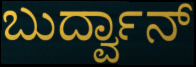
ಬುರ್ದ್ವಾನ್